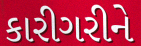
કારીગરીને